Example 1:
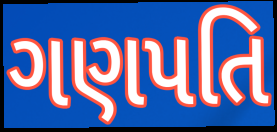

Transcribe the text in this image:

ગણપતિ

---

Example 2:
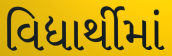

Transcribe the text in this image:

વિદ્યાર્થીમાં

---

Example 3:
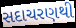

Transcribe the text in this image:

સદાચરણથી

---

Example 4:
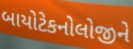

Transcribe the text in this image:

બાયોટેકનોલોજીને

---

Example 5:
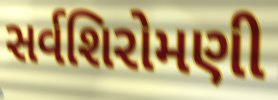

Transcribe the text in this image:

સર્વશિરોમણી